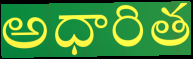
అధారిత